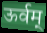
ऊर्वम्